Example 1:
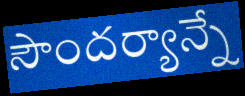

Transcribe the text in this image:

సౌందర్యాన్నే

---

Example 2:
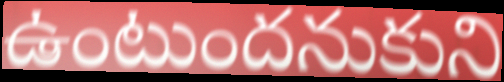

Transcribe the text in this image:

ఉంటుందనుకుని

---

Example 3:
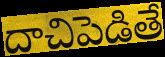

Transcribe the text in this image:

దాచిపెడితే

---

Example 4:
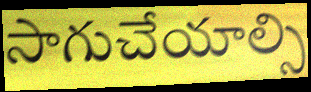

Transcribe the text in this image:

సాగుచేయాల్సి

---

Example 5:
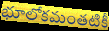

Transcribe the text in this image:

భూలోకమంతటికీ